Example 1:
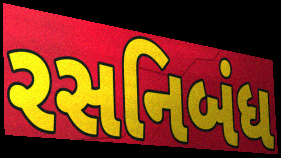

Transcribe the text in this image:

રસનિબંધ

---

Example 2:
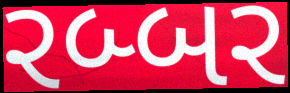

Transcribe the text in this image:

રબ્બર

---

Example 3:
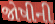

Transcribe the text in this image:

જોષીની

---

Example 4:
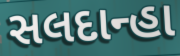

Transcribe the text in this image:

સલદાન્હા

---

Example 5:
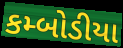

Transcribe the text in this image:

કમ્બોડીયા